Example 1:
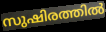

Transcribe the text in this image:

സുഷിരത്തിൽ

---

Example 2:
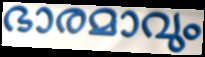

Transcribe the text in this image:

ഭാരമാവും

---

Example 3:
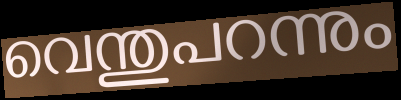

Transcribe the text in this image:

വെന്തുപറന്നും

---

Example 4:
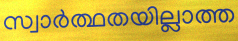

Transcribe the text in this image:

സ്വാർത്ഥതയില്ലാത്ത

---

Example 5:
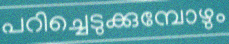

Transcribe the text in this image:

പറിച്ചെടുക്കുമ്പോഴും